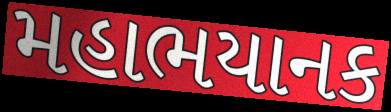
મહાભયાનક